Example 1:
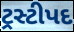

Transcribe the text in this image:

ટ્રસ્ટીપદ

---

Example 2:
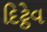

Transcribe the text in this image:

દિટ્ઠેવ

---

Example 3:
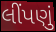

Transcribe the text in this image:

લીંપણું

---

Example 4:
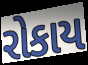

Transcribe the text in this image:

રોકાય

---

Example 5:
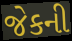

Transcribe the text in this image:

જેકની